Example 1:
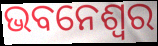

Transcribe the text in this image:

ଭବନେଶ୍ୱର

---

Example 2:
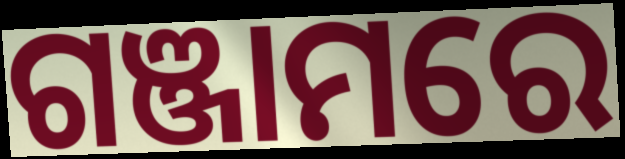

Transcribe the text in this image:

ଗଞ୍ଜାମରେ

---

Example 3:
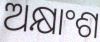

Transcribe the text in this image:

ଅକ୍ଷାଂଶ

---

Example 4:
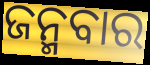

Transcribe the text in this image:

ଜନ୍ମବାର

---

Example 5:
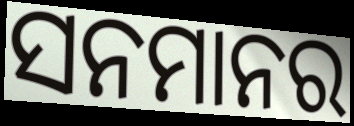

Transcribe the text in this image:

ସନମାନର